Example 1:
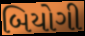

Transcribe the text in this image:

બિયોગી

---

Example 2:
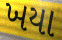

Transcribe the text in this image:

ખયા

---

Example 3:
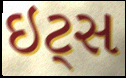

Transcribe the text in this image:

ઇટ્સ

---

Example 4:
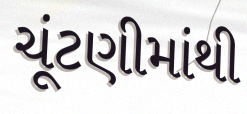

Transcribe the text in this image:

ચૂંટણીમાંથી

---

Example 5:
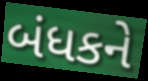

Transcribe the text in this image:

બંધકને